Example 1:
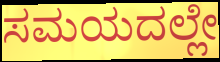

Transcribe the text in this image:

ಸಮಯದಲ್ಲೇ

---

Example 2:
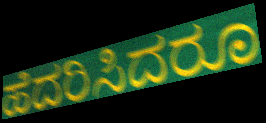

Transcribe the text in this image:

ಹೆದರಿಸಿದರೂ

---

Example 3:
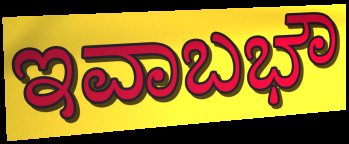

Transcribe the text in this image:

ಇವಾಬಭೌ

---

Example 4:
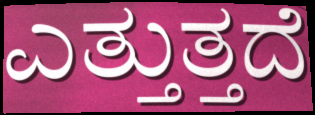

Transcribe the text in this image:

ಎತ್ತುತ್ತದೆ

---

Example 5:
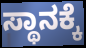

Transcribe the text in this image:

ಸ್ಥಾನಕ್ಕೆ